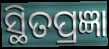
ସ୍ଥିତପ୍ରଜ୍ଞା